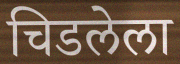
चिडलेला